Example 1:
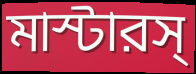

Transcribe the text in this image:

মাস্টারস্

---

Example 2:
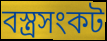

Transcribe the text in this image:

বস্ত্রসংকট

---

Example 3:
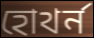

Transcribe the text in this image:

হোথর্ন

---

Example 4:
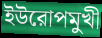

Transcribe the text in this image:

ইউরোপমুখী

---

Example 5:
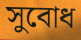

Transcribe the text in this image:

সুবোধ